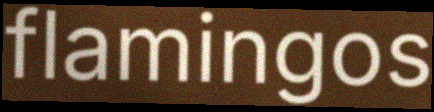
flamingos